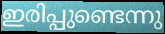
ഇരിപ്പുണ്ടെന്നു